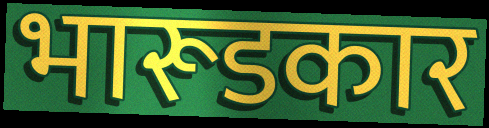
भारूडकार